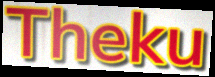
Theku